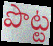
పొట్ట